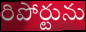
రిపోర్టును